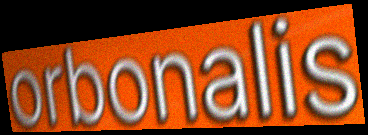
orbonalis